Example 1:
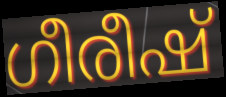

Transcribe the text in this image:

ഗീരീഷ്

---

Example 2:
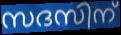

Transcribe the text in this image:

സദസിന്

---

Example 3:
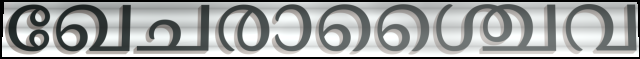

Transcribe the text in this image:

ഖേചരാശ്ചൈവ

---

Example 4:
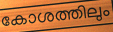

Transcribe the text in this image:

കോശത്തിലും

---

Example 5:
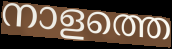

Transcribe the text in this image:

നാളത്തെ